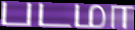
படமா